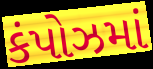
કંપોઝમાં